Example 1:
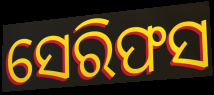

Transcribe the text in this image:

ସେରିଫସ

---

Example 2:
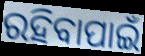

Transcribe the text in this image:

ରହିବାପାଇଁ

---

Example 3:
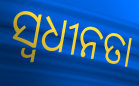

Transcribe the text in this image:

ସ୍ୱଧୀନତା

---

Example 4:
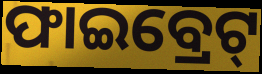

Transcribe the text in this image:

ଫାଇବ୍ରେଟ୍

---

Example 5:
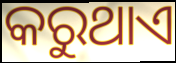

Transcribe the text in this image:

କରୁଥାଏ